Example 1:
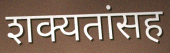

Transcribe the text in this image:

शक्यतांसह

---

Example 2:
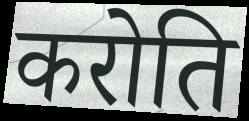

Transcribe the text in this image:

करोति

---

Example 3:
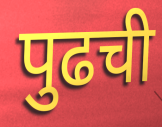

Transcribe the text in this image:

पुढची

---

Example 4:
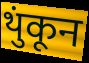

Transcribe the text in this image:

थुंकून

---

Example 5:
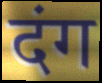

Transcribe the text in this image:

दंग